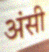
अंसी